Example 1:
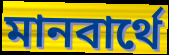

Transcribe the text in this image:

মানবার্থে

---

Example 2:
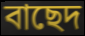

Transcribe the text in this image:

বাছেদ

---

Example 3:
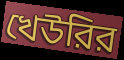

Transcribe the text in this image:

খেউরির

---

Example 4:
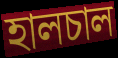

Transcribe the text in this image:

হালচাল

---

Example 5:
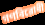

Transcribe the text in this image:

গণবিরোধী